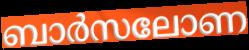
ബാർസലോണ